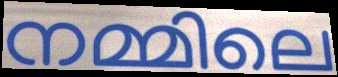
നമ്മിലെ